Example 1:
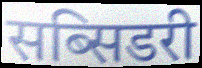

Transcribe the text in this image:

सब्सिडरी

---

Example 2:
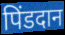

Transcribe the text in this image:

पिंडदान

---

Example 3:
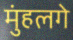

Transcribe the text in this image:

मुंहलगे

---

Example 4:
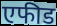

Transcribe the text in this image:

एफीड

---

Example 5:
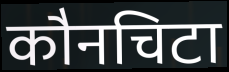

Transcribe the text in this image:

कौनचिटा